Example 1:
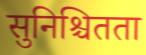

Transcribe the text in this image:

सुनिश्चितता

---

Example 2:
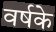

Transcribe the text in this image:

वर्षके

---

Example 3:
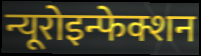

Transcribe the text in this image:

न्यूरोइन्फेक्शन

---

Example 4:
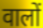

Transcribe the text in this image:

वालों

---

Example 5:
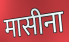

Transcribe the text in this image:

मासीना